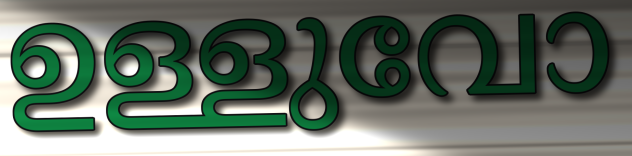
ഉള്ളുവോ